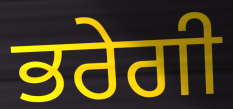
ਭਰੇਗੀ